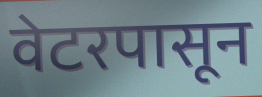
वेटरपासून